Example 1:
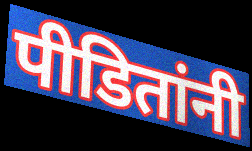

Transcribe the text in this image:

पीडितांनी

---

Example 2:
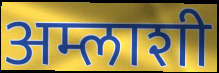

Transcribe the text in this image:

अम्लाशी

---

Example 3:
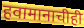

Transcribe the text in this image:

हवामानाचीही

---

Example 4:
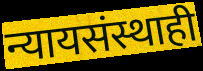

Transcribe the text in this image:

न्यायसंस्थाही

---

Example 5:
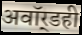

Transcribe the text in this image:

अवॉर्डही